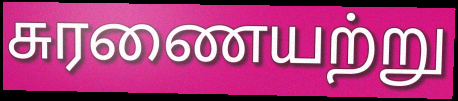
சுரணையற்று